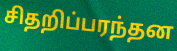
சிதறிப்பரந்தன